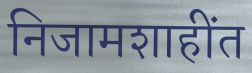
निजामशाहींत